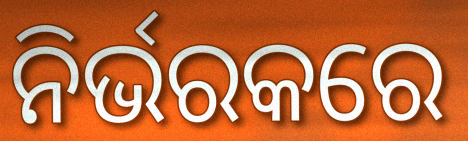
ନିର୍ଭରକରେ